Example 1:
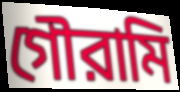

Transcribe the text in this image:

গৌরামি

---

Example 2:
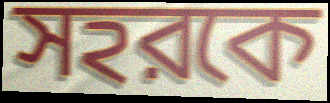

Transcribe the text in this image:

সহরকে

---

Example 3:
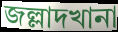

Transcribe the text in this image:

জল্লাদখানা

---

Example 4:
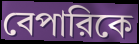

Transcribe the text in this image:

বেপারিকে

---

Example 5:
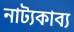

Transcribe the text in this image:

নাট্যকাব্য